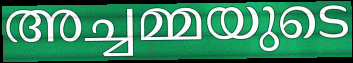
അച്ചമ്മയുടെ